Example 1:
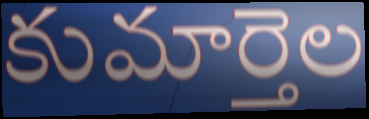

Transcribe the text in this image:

కుమార్తెల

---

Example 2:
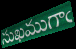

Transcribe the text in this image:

సుఖముగాఁ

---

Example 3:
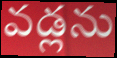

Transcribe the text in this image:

వడ్లను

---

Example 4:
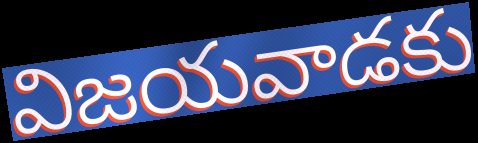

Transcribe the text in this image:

విజయవాడకు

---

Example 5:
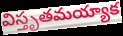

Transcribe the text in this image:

విస్తృతమయ్యాక